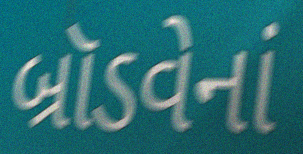
બ્રૉડવેનાં